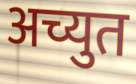
अच्‍युत